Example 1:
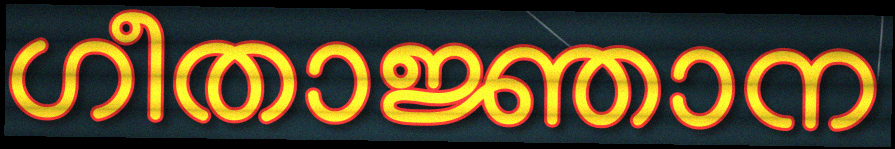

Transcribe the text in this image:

ഗീതാജ്ഞാന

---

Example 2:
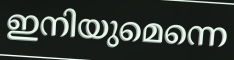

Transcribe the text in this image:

ഇനിയുമെന്നെ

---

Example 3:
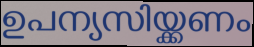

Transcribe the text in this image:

ഉപന്യസിയ്ക്കണം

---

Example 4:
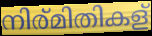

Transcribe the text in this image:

നിര്മിതികള്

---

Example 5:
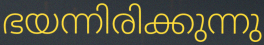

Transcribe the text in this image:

ഭയന്നിരിക്കുന്നു